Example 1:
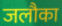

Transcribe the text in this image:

जलौका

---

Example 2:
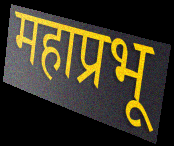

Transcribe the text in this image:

महाप्रभू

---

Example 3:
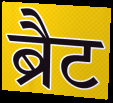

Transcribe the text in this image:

ब्रैट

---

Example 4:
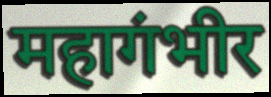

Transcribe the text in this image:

महागंभीर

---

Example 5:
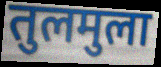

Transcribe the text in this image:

तुलमुला